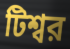
টিশ্বর